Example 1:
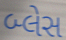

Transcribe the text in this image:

બ્લેસ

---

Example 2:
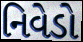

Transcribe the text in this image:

નિવેડો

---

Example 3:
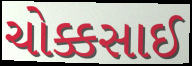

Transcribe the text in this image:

ચોક્કસાઈ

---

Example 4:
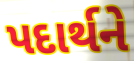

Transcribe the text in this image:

પદાર્થને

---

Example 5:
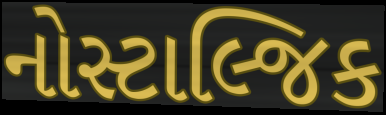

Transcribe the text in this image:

નોસ્ટાલ્જિક